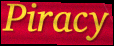
Piracy